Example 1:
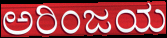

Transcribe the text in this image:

ಅರಿಂಜಯ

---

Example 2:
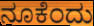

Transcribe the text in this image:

ನೂಕೆಂದು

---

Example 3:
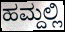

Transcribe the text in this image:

ಹಮ್ದಲ್ಲಿ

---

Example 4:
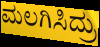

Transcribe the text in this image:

ಮಲಗಿಸಿದ್ರು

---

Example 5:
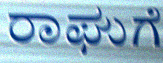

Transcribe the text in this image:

ರಾಘುಗೆ